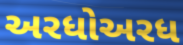
અરધોઅરધ